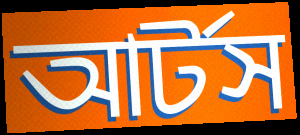
আর্টস